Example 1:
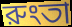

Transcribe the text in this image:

রুংতা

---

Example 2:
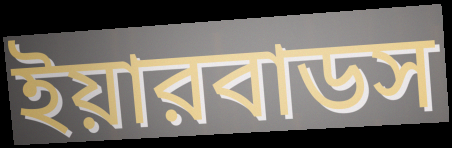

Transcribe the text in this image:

ইয়ারবাডস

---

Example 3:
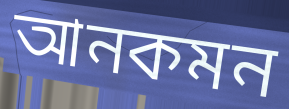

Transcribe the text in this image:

আনকমন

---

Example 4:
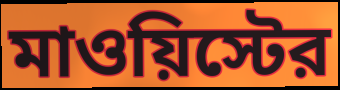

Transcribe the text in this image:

মাওয়িস্টের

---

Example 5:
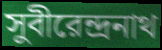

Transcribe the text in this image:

সুবীরেন্দ্রনাথ